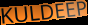
KULDEEP